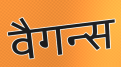
वैगन्स